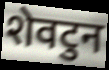
शेवटुन